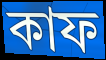
কাফ